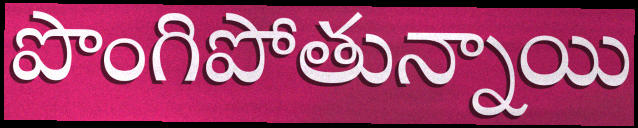
పొంగిపోతున్నాయి